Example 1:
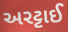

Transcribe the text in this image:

અરટ્ટાઈ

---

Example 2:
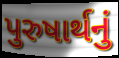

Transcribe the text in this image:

પુરુષાર્થનું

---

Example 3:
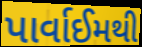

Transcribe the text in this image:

પાર્વાઈમથી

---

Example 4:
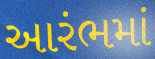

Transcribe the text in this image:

આરંભમાં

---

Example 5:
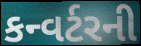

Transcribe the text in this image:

કન્વર્ટરની